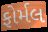
ફોર્મલ